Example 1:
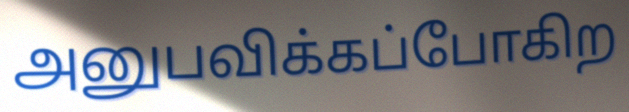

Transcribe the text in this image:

அனுபவிக்கப்போகிற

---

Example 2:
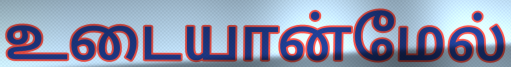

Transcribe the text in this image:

உடையான்மேல்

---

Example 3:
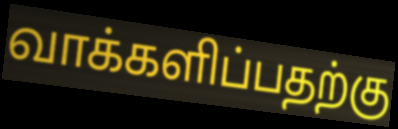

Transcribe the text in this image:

வாக்களிப்பதற்கு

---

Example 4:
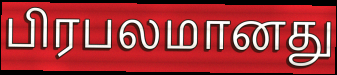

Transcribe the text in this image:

பிரபலமானது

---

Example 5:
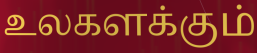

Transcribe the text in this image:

உலகளக்கும்